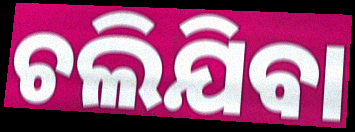
ଚଲିଯିବା